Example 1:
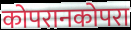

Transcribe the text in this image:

कोपरानकोपरा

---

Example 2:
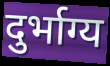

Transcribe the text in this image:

दुर्भाग्य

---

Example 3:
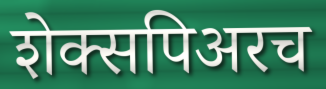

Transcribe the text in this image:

शेक्सपिअरच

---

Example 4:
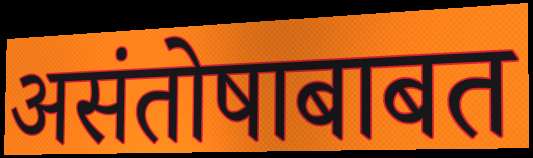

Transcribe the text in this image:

असंतोषाबाबत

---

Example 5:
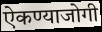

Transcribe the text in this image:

ऐकण्याजोगी